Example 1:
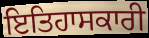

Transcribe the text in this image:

ਇਤਿਹਾਸਕਾਰੀ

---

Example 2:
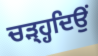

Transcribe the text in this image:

ਚੜ੍ਹ੍ਹਦਿਉਂ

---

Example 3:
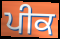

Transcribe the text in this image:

ਪੀਕ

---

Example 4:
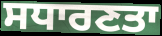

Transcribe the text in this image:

ਸਧਾਰਣਤਾ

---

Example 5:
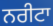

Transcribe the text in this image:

ਨਰੀਟਾ